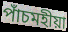
পাঁচমহীয়া